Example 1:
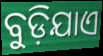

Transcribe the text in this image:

ବୁଡ଼ିଯାଏ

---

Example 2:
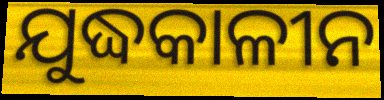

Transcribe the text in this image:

ଯୁଦ୍ଧକାଳୀନ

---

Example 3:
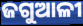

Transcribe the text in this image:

ଜଗୁଆଳୀ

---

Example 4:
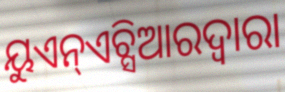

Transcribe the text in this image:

ୟୁଏନ୍ଏଚ୍ସିଆରଦ୍ୱାରା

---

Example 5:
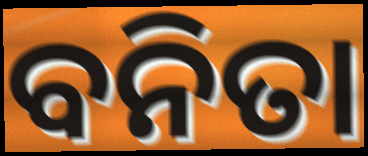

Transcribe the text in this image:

ବନିତା